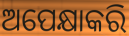
ଅପେକ୍ଷାକରି